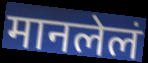
मानलेलं